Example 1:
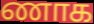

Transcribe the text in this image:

ணாக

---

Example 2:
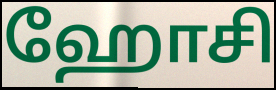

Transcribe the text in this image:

ஹோசி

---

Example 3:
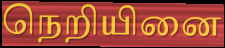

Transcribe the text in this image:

நெறியினை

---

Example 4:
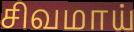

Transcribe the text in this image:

சிவமாய்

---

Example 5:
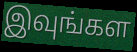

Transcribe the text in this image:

இவுங்கள